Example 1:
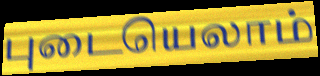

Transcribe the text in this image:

புடையெலாம்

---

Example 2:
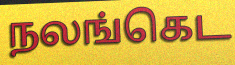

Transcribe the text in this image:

நலங்கெட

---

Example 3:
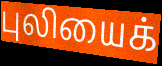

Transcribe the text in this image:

புலியைக்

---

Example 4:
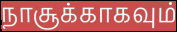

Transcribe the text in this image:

நாசூக்காகவும்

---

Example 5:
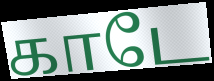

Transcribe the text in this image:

காடே